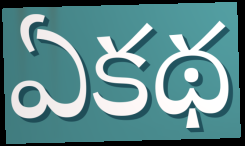
ఏకథ